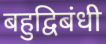
बहुद्विबंधी